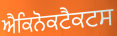
ਐਕਿਨੋਕਟੈਕਟਸ